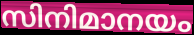
സിനിമാനയം